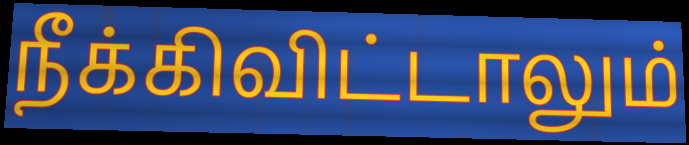
நீக்கிவிட்டாலும்